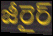
జీరైర్